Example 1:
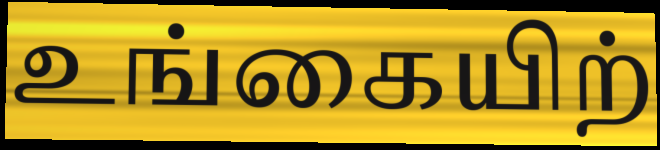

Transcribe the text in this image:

உங்கையிற்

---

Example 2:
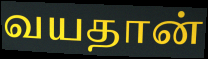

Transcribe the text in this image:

வயதான்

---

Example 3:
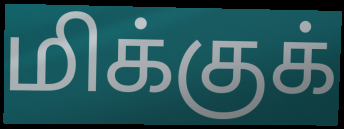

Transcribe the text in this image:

மிக்குக்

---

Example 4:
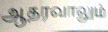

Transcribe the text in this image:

ஆதரவாலும்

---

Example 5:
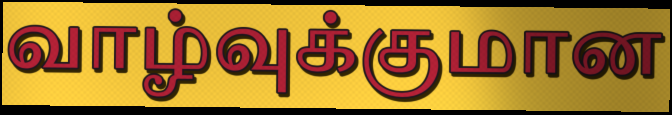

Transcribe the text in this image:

வாழ்வுக்குமான